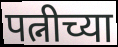
पत्नीच्या